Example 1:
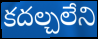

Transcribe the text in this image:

కదల్చలేని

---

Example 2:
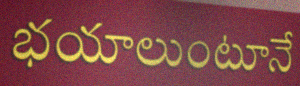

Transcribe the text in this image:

భయాలుంటూనే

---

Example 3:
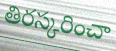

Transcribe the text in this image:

తిరస్కరించా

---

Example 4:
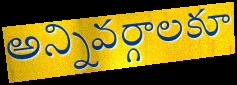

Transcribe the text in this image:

అన్నివర్గాలకూ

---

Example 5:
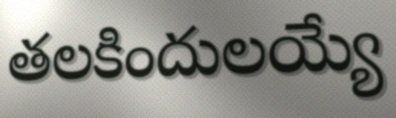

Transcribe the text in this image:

తలకిందులయ్యే